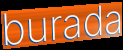
burada